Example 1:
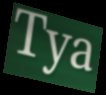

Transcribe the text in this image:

Tya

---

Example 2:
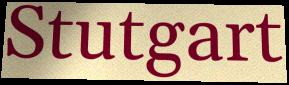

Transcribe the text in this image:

Stutgart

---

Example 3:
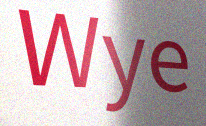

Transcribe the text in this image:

Wye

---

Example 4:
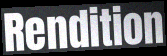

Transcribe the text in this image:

Rendition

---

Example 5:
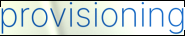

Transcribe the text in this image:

provisioning